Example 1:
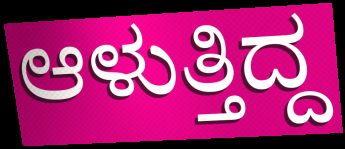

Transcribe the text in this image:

ಆಳುತ್ತಿದ್ದ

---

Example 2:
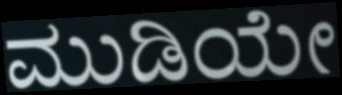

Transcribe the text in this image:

ಮುಡಿಯೇ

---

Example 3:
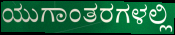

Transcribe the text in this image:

ಯುಗಾಂತರಗಳಲ್ಲಿ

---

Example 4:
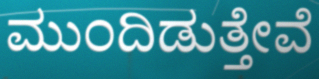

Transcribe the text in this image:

ಮುಂದಿಡುತ್ತೇವೆ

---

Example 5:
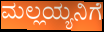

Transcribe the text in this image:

ಮಲ್ಲಯ್ಯನಿಗೆ